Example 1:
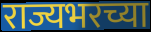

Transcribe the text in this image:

राज्यभरच्या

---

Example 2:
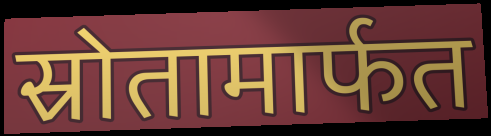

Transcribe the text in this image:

स्रोतामार्फत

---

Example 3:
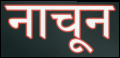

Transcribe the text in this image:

नाचून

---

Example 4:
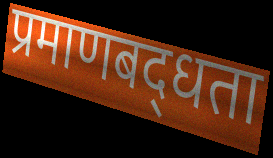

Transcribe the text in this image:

प्रमाणबद्धता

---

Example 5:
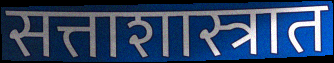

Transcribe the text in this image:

सत्ताशास्त्रात